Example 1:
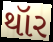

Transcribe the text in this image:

થૉર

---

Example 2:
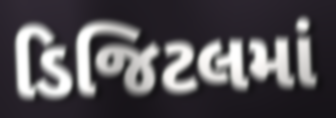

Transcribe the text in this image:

ડિજિટલમાં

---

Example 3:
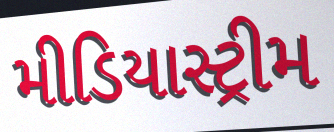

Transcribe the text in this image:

મીડિયાસ્ટ્રીમ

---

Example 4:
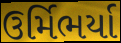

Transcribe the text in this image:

ઉર્મિભર્યા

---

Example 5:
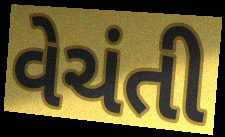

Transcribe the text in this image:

વેચંતી